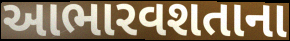
આભારવશતાના